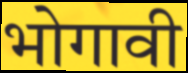
भोगावी